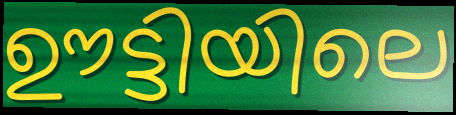
ഊട്ടിയിലെ